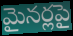
మైనర్లపై